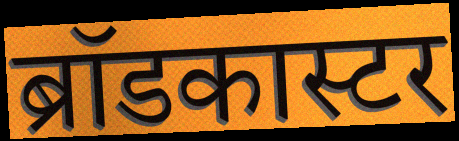
ब्रॉडकास्टर